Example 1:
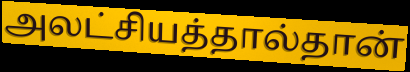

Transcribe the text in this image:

அலட்சியத்தால்தான்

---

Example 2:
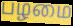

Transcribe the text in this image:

பழமை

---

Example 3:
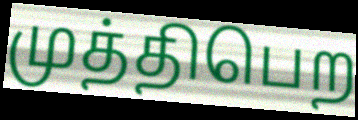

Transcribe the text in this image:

முத்திபெற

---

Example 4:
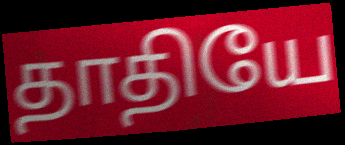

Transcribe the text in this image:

தாதியே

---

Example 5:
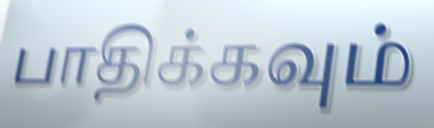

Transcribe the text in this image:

பாதிக்கவும்